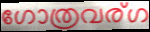
ഗോത്രവര്ഗ